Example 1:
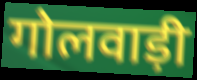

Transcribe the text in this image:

गोलवाड़ी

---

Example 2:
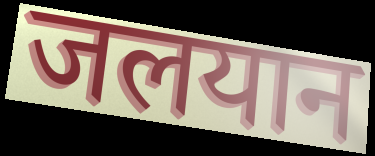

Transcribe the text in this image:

जलयान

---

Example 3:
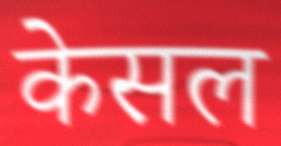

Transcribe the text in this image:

केसल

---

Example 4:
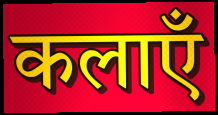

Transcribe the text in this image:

कलाएँ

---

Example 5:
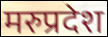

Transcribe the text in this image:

मरुप्रदेश